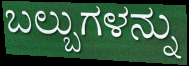
ಬಲ್ಬುಗಳನ್ನು